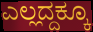
ಎಲ್ಲದ್ದಕ್ಕೂ